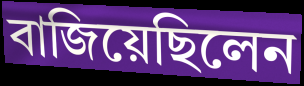
বাজিয়েছিলেন